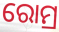
ରୋମ୍ର